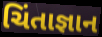
ચિંતાજ્ઞાન